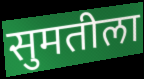
सुमतीला